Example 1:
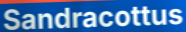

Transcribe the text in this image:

Sandracottus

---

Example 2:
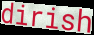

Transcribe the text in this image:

dirish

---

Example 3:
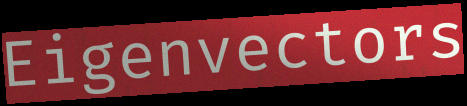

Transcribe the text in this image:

Eigenvectors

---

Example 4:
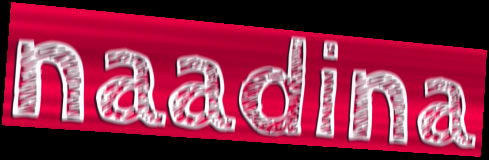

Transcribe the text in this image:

naadina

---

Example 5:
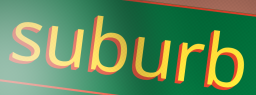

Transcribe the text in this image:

suburb